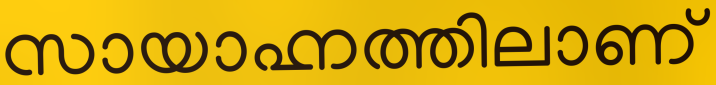
സായാഹ്നത്തിലാണ്